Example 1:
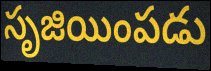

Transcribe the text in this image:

సృజియింపడు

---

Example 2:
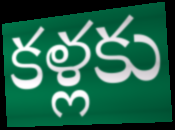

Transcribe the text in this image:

కళ్లకు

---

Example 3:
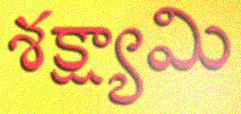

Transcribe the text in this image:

శక్ష్యామి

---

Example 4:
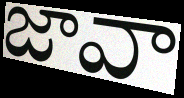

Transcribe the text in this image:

జావా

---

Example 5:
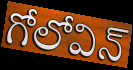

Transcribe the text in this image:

గోలోవిన్